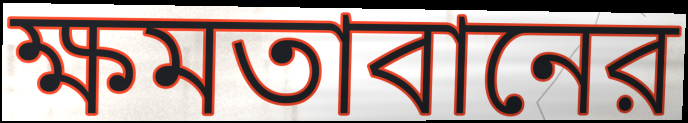
ক্ষমতাবানের